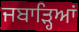
ਜਬਾੜ੍ਹਿਆਂ